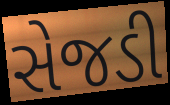
સેજડી